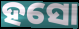
ହସୋ